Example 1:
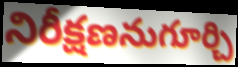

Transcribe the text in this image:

నిరీక్షణనుగూర్చి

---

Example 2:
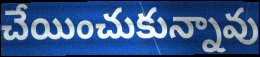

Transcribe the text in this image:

చేయించుకున్నావు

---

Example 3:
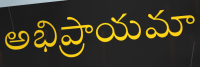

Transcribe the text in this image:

అభిప్రాయమా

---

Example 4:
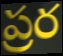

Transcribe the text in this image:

ప్రర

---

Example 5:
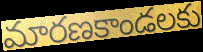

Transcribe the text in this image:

మారణకాండలకు